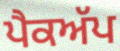
ਪੈਕਅੱਪ